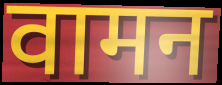
वामन